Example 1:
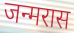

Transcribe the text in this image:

जन्मरास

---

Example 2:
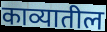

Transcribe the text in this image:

काव्यातील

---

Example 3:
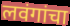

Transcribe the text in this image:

लवंगांचा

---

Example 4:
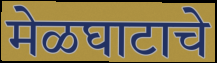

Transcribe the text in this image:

मेळघाटाचे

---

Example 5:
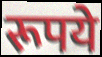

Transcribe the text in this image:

रूपये